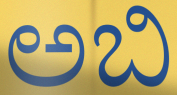
ಅಬಿ